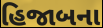
હિજાબના